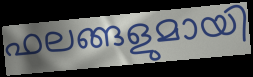
ഫലങ്ങളുമായി